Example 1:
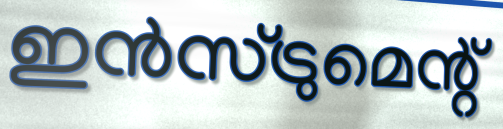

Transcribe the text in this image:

ഇൻസ്ട്രുമെന്റ്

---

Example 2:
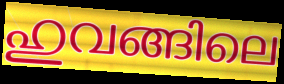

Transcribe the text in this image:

ഹുവങ്ങിലെ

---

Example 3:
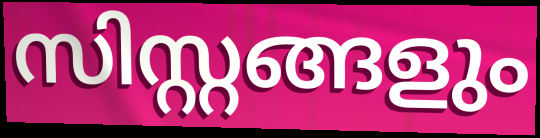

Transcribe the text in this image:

സിസ്റ്റങ്ങളും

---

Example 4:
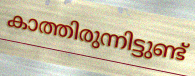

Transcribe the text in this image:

കാത്തിരുന്നിട്ടുണ്ട്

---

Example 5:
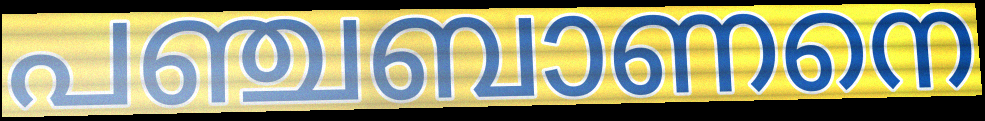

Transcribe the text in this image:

പഞ്ചബാണനെ